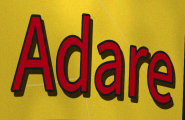
Adare